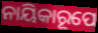
ନାୟିକାରୂପେ